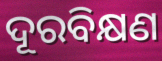
ଦୂରବିକ୍ଷଣ